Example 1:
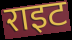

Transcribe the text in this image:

राइट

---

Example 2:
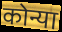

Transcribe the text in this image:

कोन्या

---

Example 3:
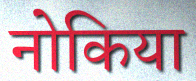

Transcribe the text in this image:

नोकिया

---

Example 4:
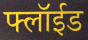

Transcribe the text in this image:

फ्लॉईड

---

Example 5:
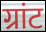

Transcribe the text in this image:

ग्रांट